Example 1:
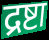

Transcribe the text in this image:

द्रष्टा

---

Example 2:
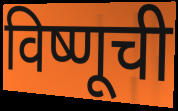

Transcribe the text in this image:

विष्णूची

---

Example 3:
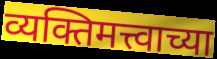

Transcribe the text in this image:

व्यक्तिमत्त्वाच्या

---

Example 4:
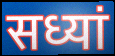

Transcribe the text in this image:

सध्यां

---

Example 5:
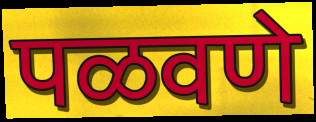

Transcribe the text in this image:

पळवणे